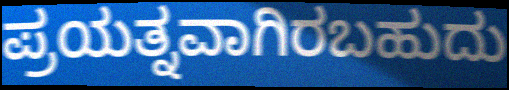
ಪ್ರಯತ್ನವಾಗಿರಬಹುದು